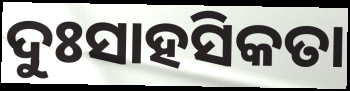
ଦୁଃସାହସିକତା